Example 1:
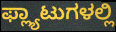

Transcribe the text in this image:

ಫ್ಲ್ಯಾಟುಗಳಲ್ಲಿ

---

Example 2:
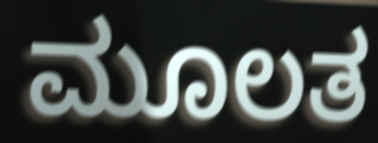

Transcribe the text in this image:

ಮೂಲತ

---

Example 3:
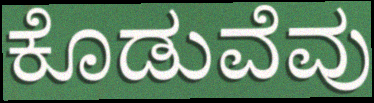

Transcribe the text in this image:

ಕೊಡುವೆವು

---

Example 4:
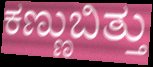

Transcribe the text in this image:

ಕಣ್ಣುಬಿತ್ತು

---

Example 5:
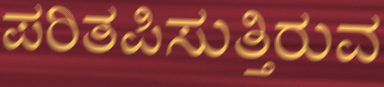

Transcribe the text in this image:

ಪರಿತಪಿಸುತ್ತಿರುವ